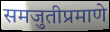
समजुतीप्रमाणे